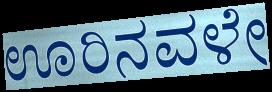
ಊರಿನವಳೇ